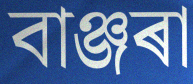
বাঞ্জৰা